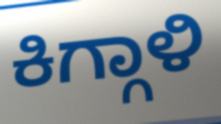
ಕಿಗ್ಗಾಳಿ